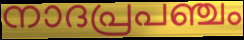
നാദപ്രപഞ്ചം